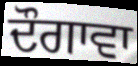
ਦੌਗਾਵਾ